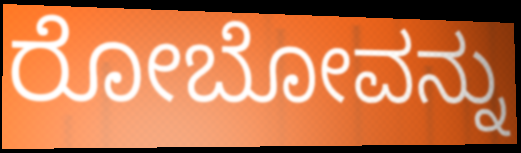
ರೋಬೋವನ್ನು